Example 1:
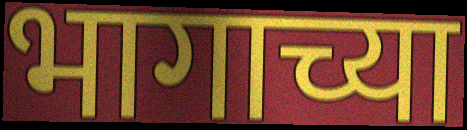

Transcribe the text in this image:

भागाच्या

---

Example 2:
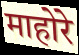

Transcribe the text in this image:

माहोरे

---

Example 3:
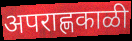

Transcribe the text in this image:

अपराह्णकाळी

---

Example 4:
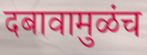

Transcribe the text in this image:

दबावामुळंच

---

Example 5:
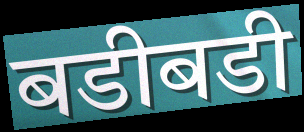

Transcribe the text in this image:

बडीबडी